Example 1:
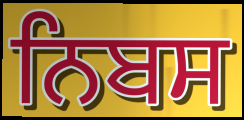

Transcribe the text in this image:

ਨਿਬਸ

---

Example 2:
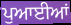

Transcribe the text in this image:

ਪੁਆਈਆਂ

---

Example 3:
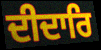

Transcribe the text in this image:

ਦੀਦਾਰਿ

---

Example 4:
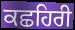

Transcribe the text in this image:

ਕਛਹਿਰੀ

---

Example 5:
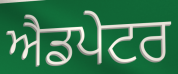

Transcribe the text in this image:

ਐਡਪੇਟਰ